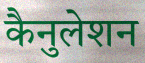
कैनुलेशन